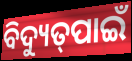
ବିଦ୍ୟୁତ୍‌ପାଇଁ